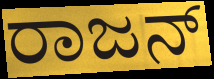
ರಾಜನ್